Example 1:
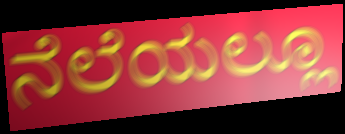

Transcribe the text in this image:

ನೆಲೆಯಲ್ಲೂ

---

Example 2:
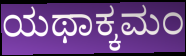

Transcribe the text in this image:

ಯಥಾಕ್ಕಮಂ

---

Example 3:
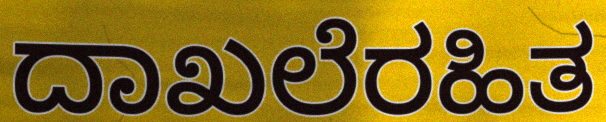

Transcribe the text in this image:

ದಾಖಲೆರಹಿತ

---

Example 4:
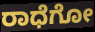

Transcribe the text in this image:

ರಾಧೆಗೋ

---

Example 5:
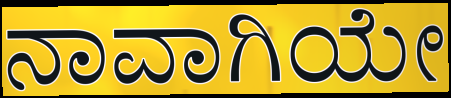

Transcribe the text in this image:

ನಾವಾಗಿಯೇ